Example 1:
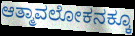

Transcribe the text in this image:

ಆತ್ಮಾವಲೋಕನಕ್ಕೂ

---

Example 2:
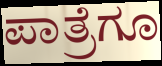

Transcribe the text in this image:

ಪಾತ್ರೆಗೂ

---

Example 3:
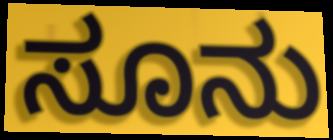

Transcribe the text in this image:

ಸೂನು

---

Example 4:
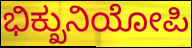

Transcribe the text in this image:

ಭಿಕ್ಖುನಿಯೋಪಿ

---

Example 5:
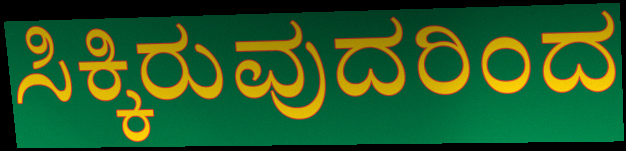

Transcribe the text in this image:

ಸಿಕ್ಕಿರುವುದರಿಂದ